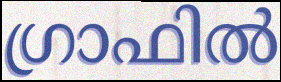
ഗ്രാഫിൽ